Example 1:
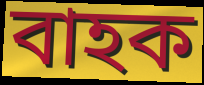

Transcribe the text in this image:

বাহক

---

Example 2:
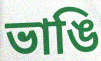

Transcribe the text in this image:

ভাঙি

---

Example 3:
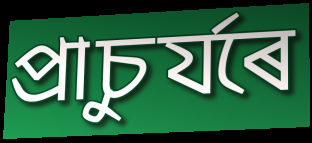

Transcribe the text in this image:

প্ৰাচুৰ্যৰে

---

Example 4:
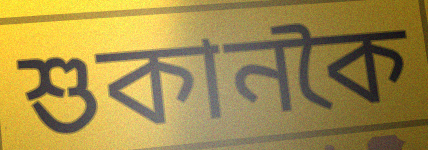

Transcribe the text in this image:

শুকানকৈ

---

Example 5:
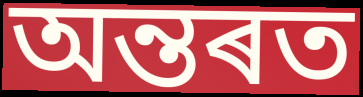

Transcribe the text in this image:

অন্তৰত